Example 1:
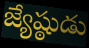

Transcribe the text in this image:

జ్యేష్ఠుడు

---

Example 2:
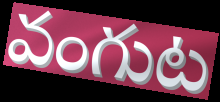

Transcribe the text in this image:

వంగుట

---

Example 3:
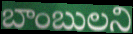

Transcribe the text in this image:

బాంబులని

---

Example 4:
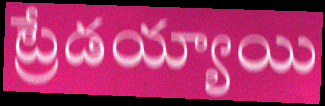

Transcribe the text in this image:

ట్రేడయ్యాయి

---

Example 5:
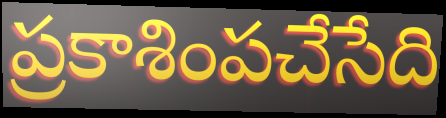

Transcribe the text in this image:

ప్రకాశింపచేసేది